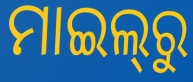
ମାଇଲ୍‌ରୁ